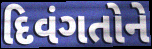
દિવંગતોને